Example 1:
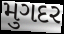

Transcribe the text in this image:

મુગદર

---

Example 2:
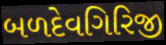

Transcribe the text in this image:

બળદેવગિરિજી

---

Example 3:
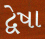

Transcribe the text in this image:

દ્વેષા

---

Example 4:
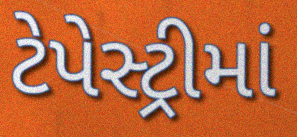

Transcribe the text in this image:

ટેપેસ્ટ્રીમાં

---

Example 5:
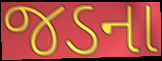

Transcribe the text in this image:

જડના